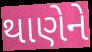
થાણેને